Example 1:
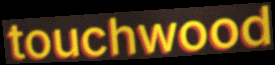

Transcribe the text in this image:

touchwood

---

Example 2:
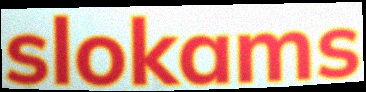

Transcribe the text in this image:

slokams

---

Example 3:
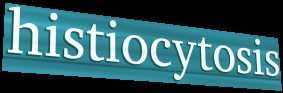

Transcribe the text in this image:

histiocytosis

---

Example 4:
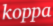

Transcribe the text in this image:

koppa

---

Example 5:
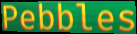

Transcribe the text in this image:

Pebbles